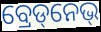
ବ୍ରେଡ୍‌ନେଭ୍